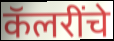
कॅलरींचे